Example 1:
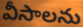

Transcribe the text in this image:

వీసాలను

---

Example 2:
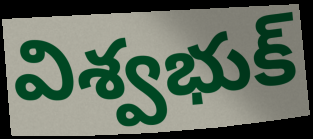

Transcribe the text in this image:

విశ్వభుక్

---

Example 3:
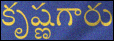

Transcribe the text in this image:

కృష్ణగారు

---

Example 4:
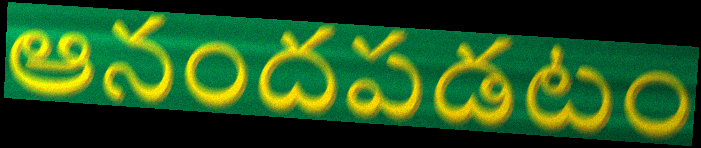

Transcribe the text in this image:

ఆనందపడటం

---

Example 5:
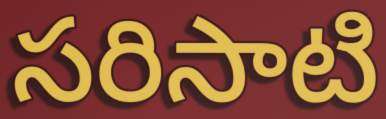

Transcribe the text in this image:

సరిసాటి